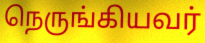
நெருங்கியவர்